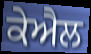
ਕੇਐਲ